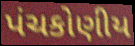
પંચકોણીય